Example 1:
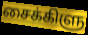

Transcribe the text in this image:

சைக்கிளு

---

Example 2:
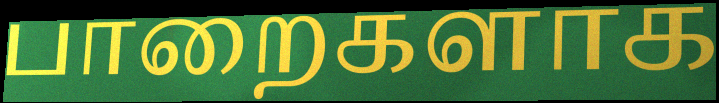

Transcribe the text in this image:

பாறைகளாக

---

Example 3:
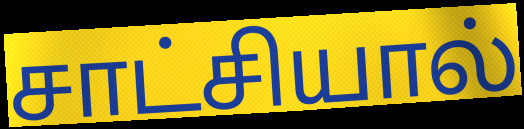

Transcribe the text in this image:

சாட்சியால்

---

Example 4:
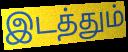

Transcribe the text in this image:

இடத்தும்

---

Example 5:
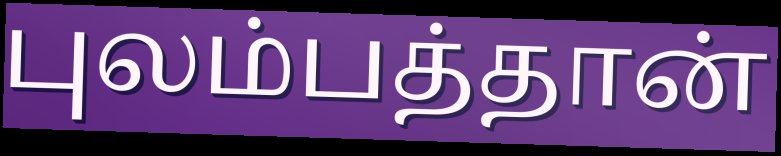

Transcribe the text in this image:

புலம்பத்தான்